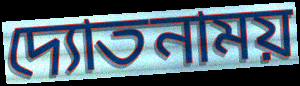
দ্যোতনাময়